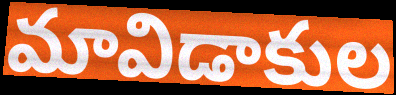
మావిడాకుల